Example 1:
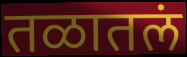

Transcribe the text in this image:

तळातलं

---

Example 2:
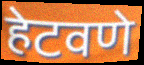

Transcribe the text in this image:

हेटवणे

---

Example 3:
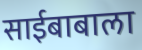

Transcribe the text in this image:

साईबाबाला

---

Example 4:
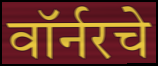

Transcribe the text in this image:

वॉर्नरचे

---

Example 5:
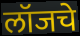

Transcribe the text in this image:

लॉजचे